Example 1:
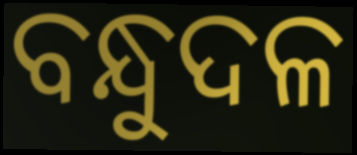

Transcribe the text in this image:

ବନ୍ଧୁଦଳ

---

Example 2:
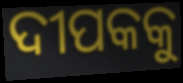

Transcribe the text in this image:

ଦୀପକକୁ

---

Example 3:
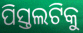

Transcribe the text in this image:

ପିସ୍ତଲଟିକୁ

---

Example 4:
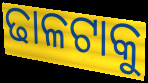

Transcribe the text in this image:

ଢାଳଟାକୁ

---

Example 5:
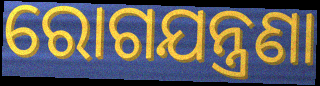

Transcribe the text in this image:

ରୋଗଯନ୍ତ୍ରଣା